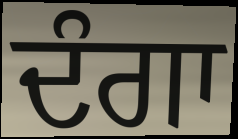
ਦੰਗਾ